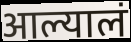
आल्यालं